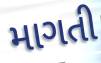
માગતી